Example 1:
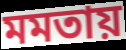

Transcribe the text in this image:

মমতায়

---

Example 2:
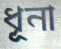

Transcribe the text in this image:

ধূনা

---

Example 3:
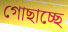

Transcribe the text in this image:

গোছাচ্ছে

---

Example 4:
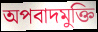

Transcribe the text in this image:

অপবাদমুক্তি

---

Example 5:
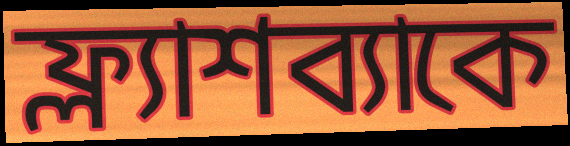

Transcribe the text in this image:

ফ্ল্যাশব্যাকে